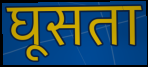
घूसता